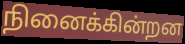
நினைக்கின்றன